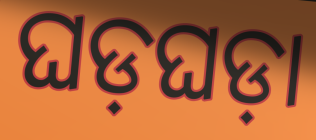
ଘଡ଼ଘଡ଼ା